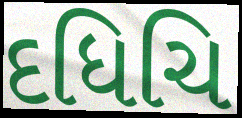
દધિચિ